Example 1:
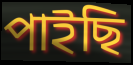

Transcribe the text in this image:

পাইছি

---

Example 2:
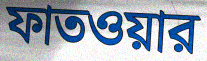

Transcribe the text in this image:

ফাতওয়ার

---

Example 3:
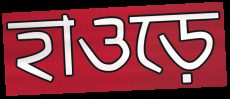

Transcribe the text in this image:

হাওড়ে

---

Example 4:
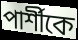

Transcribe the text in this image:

পার্শীকে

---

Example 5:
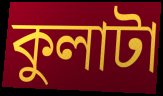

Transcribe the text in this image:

কুলাটা